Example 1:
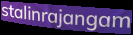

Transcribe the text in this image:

stalinrajangam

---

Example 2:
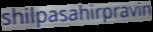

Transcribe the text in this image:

shilpasahirpravin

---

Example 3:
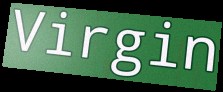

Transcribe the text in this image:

Virgin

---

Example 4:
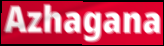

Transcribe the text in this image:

Azhagana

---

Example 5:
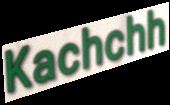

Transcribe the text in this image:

Kachchh